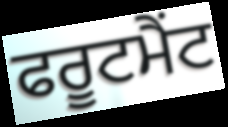
ਫਰੂਟਮੈਂਟ